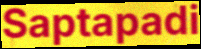
Saptapadi